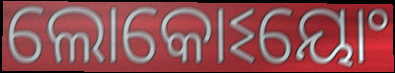
ଲୋକୋଽୟୋଂ